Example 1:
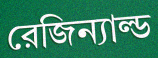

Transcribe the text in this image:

রেজিন্যাল্ড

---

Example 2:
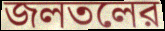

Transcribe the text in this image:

জলতলের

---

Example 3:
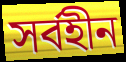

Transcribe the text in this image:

সর্বহীন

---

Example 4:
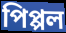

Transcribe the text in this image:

পিপ্পল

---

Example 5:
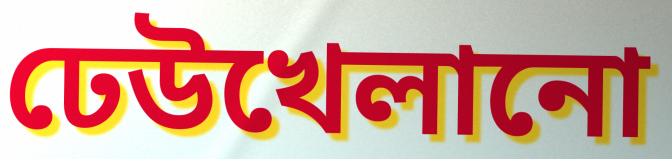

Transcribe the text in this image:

ঢেউখেলানো